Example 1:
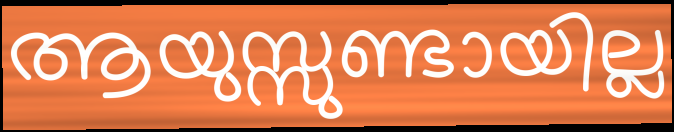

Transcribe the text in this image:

ആയുസ്സുണ്ടായില്ല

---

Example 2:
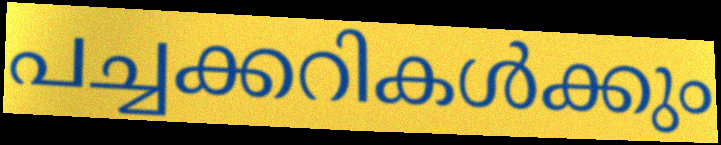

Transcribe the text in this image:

പച്ചക്കറികൾക്കും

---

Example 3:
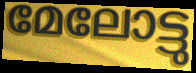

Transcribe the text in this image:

മേലോട്ടു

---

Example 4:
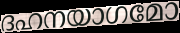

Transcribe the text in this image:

ദഹനയാഗമോ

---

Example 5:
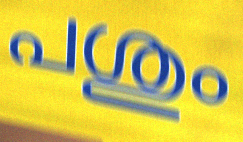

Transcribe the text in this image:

പശും